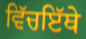
ਵਿੱਚਇੱਥੇ